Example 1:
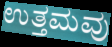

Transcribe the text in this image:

ಉತ್ತಮವು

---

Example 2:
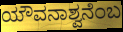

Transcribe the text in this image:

ಯೌವನಾಶ್ವನೆಂಬ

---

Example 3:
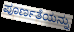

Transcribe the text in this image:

ಪೂರ್ಣತೆಯನ್ನು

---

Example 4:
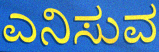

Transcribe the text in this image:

ಎನಿಸುವ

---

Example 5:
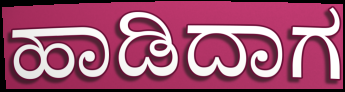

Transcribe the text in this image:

ಹಾಡಿದಾಗ